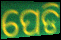
ପେଡି